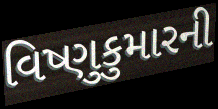
વિષ્ણુકુમારની